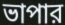
ভাপার